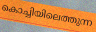
കൊച്ചിയിലെത്തുന്ന